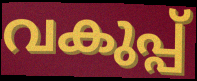
വകുപ്പ്